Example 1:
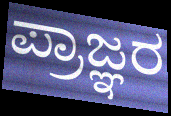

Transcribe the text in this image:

ಪ್ರಾಜ್ಞರ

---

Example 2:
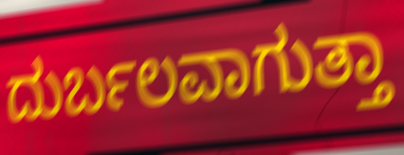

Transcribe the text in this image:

ದುರ್ಬಲವಾಗುತ್ತಾ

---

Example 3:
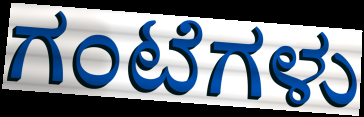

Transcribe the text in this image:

ಗಂಟೆಗಳು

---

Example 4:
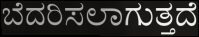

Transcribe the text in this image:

ಬೆದರಿಸಲಾಗುತ್ತದೆ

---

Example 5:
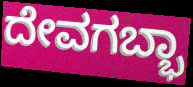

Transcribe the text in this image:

ದೇವಗಬ್ಭಾ